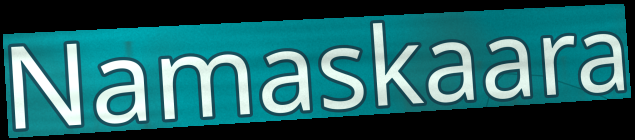
Namaskaara